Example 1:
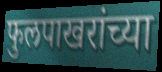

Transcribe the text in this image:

फुलपाखरांच्या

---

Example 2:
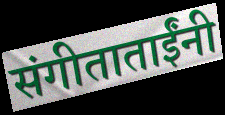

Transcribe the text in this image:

संगीताताईंनी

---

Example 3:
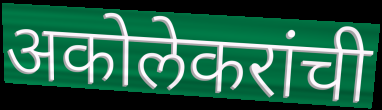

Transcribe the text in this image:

अकोलेकरांची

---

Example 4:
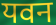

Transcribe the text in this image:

यवन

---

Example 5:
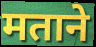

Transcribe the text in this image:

मताने